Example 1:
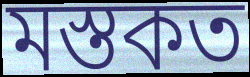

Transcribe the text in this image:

মস্তকত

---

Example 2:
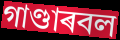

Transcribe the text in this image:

গাণ্ডাৰবল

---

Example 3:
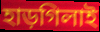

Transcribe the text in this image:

হাড়গিলাই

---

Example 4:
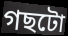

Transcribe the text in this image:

গছটো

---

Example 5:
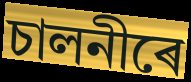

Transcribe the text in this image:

চালনীৰে